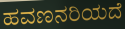
ಹವಣನರಿಯದೆ